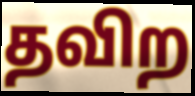
தவிற